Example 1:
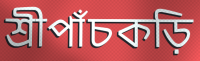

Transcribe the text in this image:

শ্রীপাঁচকড়ি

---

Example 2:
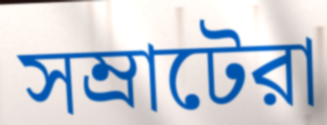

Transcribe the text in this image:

সম্রাটেরা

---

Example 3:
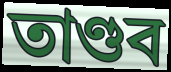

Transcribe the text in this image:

তাণ্ডব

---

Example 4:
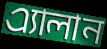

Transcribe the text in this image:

এ্যালান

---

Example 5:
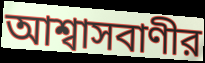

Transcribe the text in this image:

আশ্বাসবাণীর